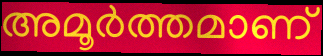
അമൂർത്തമാണ്